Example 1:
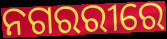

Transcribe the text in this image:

ନଗରରୀରେ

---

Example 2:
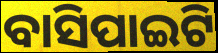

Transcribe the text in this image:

ବାସିପାଇଟି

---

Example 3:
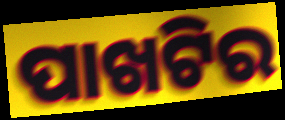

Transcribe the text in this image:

ପାଖଟିର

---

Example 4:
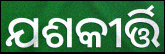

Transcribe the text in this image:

ଯଶକୀର୍ତ୍ତି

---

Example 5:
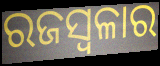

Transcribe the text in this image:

ରଜସ୍ୱଳାର